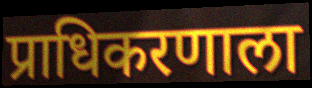
प्राधिकरणाला